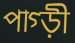
পাগ্ড়ী